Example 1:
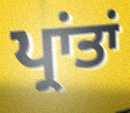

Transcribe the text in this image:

ਪ੍ਰਾਂਤਾਂ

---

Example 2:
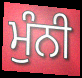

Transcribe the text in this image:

ਮੁੰਨੀ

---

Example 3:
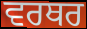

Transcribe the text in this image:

ਵਰਥਰ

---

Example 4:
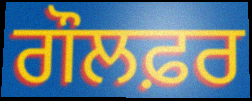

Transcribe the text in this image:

ਗੌਲਫ਼ਰ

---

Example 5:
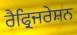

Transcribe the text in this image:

ਰੈਫ੍ਰਿਜਰੇਸ਼ਨ